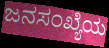
ಜನಸಂಖ್ಯೆಯ